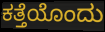
ಕತ್ತೆಯೊಂದು